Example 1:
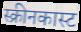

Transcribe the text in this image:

स्क्रीनकास्ट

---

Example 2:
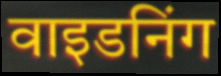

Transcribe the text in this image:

वाइडनिंग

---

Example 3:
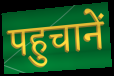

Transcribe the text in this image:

पहुचानें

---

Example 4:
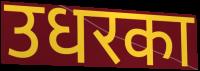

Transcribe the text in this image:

उधरका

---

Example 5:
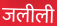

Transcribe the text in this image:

जलीली